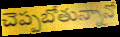
చెప్పబోతున్నానో